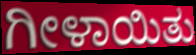
ಗೀಳಾಯಿತು